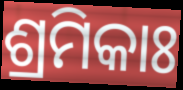
ଶ୍ରମିକାଃ